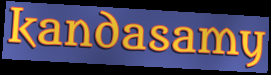
kandasamy